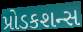
પ્રોડકશન્સ